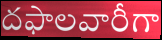
దఫాలవారీగా